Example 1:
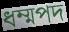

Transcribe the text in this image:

ধম্মপদ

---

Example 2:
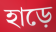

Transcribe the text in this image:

হাড়ে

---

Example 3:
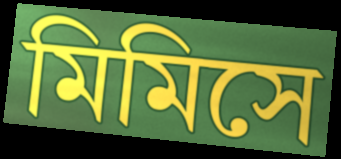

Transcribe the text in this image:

মিমিসে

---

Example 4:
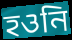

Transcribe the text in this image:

হওনি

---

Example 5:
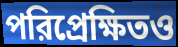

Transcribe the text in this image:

পরিপ্রেক্ষিতও